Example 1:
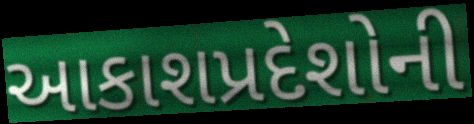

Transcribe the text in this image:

આકાશપ્રદેશોની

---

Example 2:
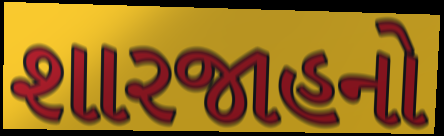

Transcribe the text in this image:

શારજાહનો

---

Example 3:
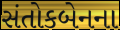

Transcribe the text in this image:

સંતોકબેનના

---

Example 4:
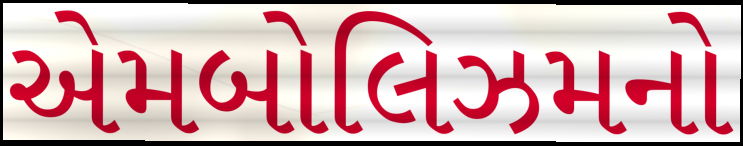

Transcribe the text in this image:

એમબોલિઝમનો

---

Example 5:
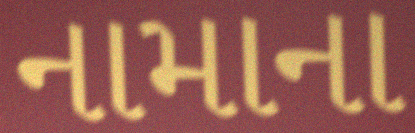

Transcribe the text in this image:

નામાના